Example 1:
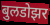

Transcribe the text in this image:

बुलडोझर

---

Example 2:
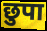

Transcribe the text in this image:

छुपा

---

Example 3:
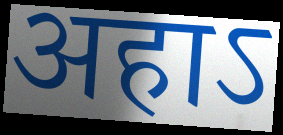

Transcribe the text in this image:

अहाऽ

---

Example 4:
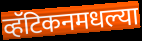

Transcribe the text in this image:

व्हॅटिकनमधल्या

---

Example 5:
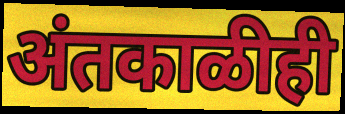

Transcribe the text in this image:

अंतकाळीही